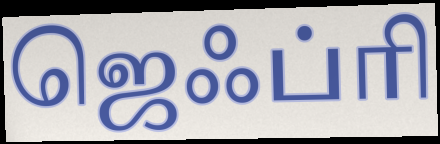
ஜெஃப்ரி